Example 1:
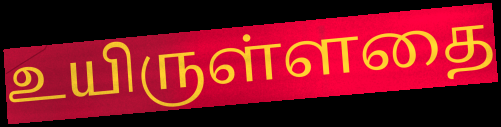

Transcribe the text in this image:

உயிருள்ளதை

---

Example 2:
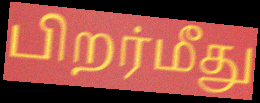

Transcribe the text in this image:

பிறர்மீது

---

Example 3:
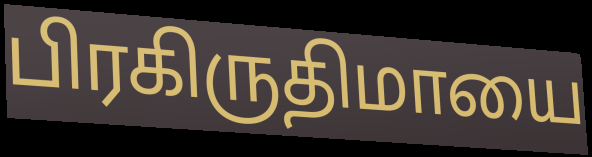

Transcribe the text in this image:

பிரகிருதிமாயை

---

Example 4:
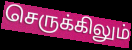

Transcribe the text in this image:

செருக்கிலும்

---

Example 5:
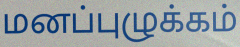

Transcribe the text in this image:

மனப்புழுக்கம்